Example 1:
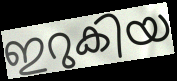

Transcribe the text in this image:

ഇറുകിയ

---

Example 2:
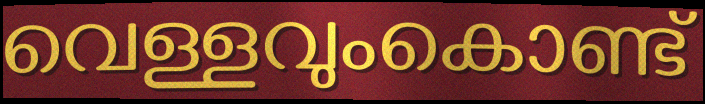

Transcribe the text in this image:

വെള്ളവുംകൊണ്ട്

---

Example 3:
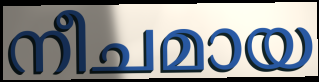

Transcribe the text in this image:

നീചമായ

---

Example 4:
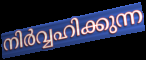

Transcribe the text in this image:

നിർവ്വഹിക്കുന്ന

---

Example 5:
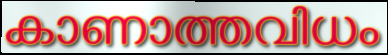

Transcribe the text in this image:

കാണാത്തവിധം